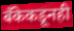
बँकेकडूनही